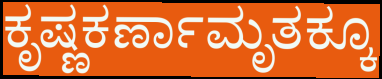
ಕೃಷ್ಣಕರ್ಣಾಮೃತಕ್ಕೂ